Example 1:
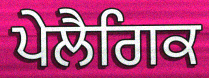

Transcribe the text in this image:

ਪੇਲੈਗਿਕ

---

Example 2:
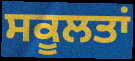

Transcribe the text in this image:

ਸਕੂਲਤਾਂ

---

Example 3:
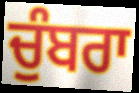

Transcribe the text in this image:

ਚੁੰਬਰਾ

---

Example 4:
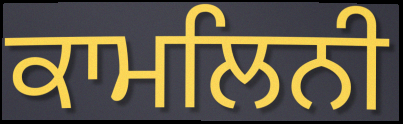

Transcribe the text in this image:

ਕਾਮਲਿਨੀ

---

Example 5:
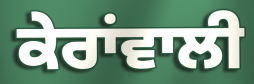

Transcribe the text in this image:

ਕੇਰਾਂਵਾਲੀ